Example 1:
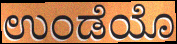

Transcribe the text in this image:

ಉಂಡೆಯೊ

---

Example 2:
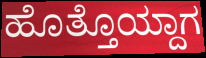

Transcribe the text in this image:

ಹೊತ್ತೊಯ್ದಾಗ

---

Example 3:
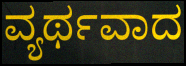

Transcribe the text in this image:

ವ್ಯರ್ಥವಾದ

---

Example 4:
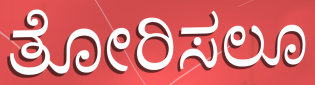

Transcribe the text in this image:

ತೋರಿಸಲೂ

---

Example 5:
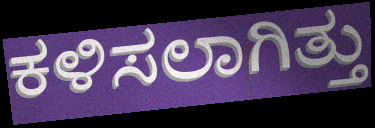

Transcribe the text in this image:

ಕಳಿಸಲಾಗಿತ್ತು